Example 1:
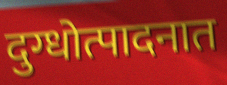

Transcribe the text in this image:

दुग्धोत्पादनात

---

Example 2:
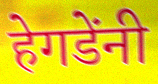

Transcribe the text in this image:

हेगडेंनी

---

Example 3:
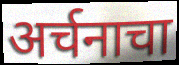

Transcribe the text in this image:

अर्चनाचा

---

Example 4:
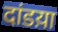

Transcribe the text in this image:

दांडय़ा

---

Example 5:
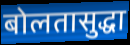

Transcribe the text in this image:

बोलतासुद्धा